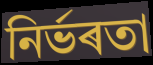
নিৰ্ভৰতা